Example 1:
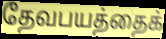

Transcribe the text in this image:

தேவபயத்தைக்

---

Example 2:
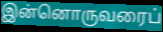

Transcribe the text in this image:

இன்னொருவரைப்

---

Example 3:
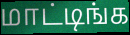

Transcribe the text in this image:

மாட்டிங்க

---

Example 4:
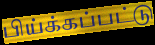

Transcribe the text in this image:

பிய்க்கப்பட்டு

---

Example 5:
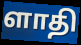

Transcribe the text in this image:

ளாதி